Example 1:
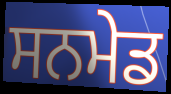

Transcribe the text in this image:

ਸਨਮੇਡ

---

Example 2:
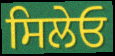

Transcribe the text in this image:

ਸਿਲੇਓ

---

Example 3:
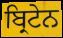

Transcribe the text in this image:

ਬ੍ਰਿਟੇਨ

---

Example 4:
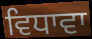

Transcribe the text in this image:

ਵਿਧਾਵਾ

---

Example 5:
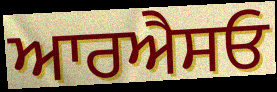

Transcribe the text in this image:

ਆਰਐਸਓ